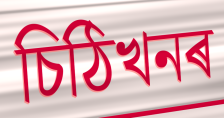
চিঠিখনৰ